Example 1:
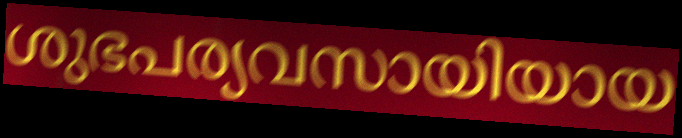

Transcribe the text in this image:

ശുഭപര്യവസായിയായ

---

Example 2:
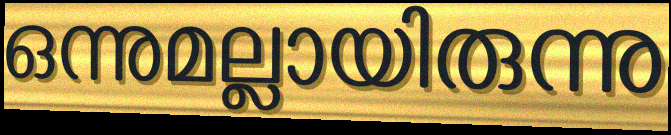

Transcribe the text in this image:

ഒന്നുമല്ലായിരുന്നു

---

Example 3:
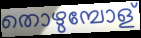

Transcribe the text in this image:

തൊഴുമ്പോള്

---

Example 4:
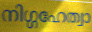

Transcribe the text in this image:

നിഗ്ഗഹേത്വാ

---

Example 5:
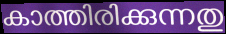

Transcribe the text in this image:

കാത്തിരിക്കുന്നതു